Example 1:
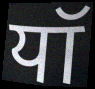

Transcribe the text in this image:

यॉ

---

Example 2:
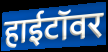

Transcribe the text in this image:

हाईटॉवर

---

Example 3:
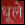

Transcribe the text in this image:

धूले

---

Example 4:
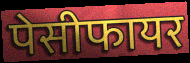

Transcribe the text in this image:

पेसीफायर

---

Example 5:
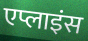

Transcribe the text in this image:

एप्लाइंस